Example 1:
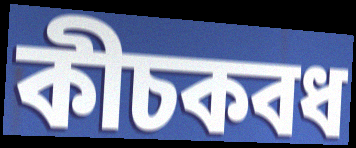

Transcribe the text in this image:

কীচকবধ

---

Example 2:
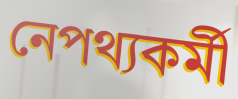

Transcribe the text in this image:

নেপথ্যকর্মী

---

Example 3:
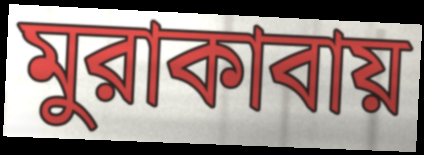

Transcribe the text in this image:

মুরাকাবায়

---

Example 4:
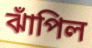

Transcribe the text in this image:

ঝাঁপিল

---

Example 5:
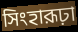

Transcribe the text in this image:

সিংহারূঢ়া